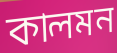
কালমন